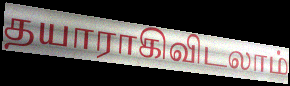
தயாராகிவிடலாம்